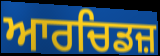
ਆਰਚਿਡਜ਼